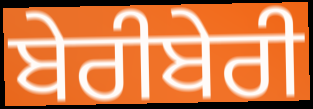
ਬੇਰੀਬੇਰੀ